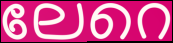
ലേറെ